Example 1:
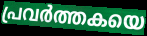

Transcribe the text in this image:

പ്രവർത്തകയെ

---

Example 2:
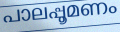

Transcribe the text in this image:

പാലപ്പൂമണം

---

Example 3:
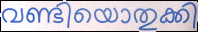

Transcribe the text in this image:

വണ്ടിയൊതുക്കി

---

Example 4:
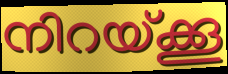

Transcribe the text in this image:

നിറയ്ക്കൂ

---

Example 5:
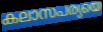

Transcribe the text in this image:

കലാസപര്യയെ